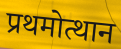
प्रथमोत्थान